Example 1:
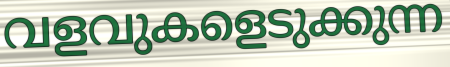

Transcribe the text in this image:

വളവുകളെടുക്കുന്ന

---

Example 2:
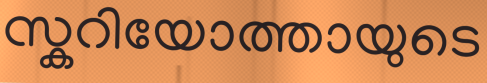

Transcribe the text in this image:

സ്കറിയോത്തായുടെ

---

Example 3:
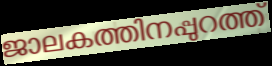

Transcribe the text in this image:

ജാലകത്തിനപ്പുറത്ത്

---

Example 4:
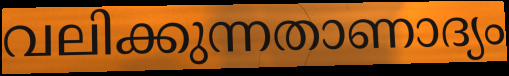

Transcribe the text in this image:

വലിക്കുന്നതാണാദ്യം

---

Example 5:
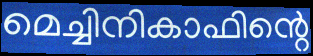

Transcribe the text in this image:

മെച്ചിനികാഫിന്റെ